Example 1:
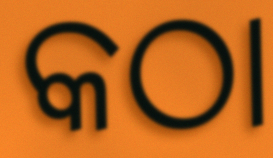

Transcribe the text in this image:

କଠା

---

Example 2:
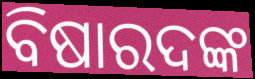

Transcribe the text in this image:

ବିଷାରଦଙ୍କ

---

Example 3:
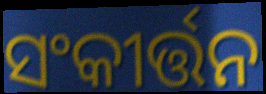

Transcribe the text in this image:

ସଂକୀର୍ତ୍ତନ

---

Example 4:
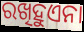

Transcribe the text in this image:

ରଖିହୁଏନା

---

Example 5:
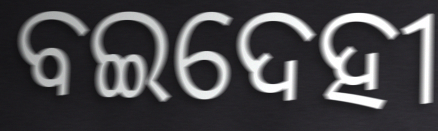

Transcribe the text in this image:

ବଇଦେହୀ